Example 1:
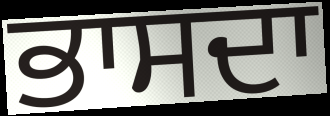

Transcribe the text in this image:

ਭਾਸਦਾ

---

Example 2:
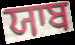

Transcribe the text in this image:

ਯਾਬ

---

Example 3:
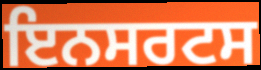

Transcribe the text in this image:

ਇਨਸਰਟਸ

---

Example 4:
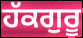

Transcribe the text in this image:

ਹੱਕਗੁਰੂ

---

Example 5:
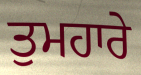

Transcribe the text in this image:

ਤੁਮਹਾਰੇ